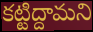
కట్టిద్దామని